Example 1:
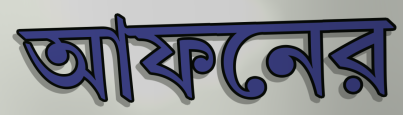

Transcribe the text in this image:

আফনের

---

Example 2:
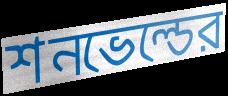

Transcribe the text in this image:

শনভেল্ডের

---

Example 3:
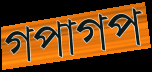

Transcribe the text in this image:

গপাগপ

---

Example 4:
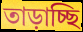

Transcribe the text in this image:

তাড়াচ্ছি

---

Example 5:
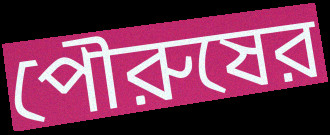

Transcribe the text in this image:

পৌরুষের